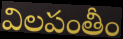
విలపంతీం